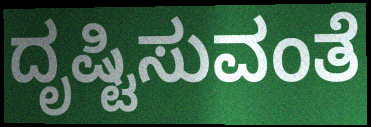
ದೃಷ್ಟಿಸುವಂತೆ